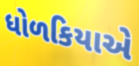
ધોળકિયાએ